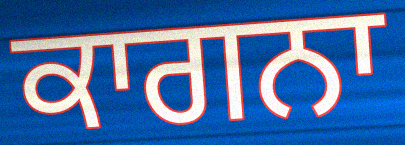
ਕਾਗਨਾ